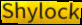
Shylock